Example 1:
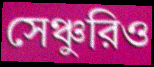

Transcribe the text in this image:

সেঞ্চুরিও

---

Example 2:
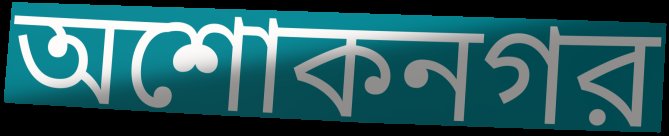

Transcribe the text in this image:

অশোকনগর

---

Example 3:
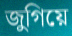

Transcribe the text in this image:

জুগিয়ে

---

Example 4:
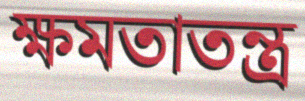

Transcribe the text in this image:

ক্ষমতাতন্ত্র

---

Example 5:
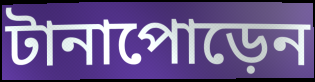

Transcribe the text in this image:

টানাপোড়েন